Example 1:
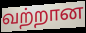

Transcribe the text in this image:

வற்றான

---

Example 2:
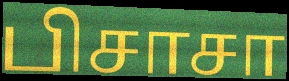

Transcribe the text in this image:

பிசாசா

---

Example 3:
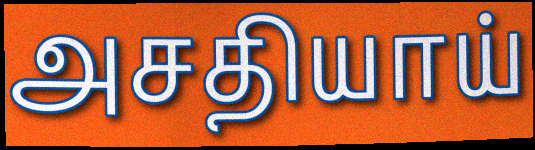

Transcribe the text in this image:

அசதியாய்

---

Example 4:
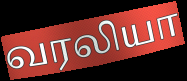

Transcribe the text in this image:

வரலியா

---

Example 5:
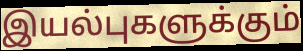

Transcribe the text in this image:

இயல்புகளுக்கும்